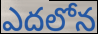
ఎదలోన